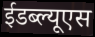
ईडब्ल्यूएस